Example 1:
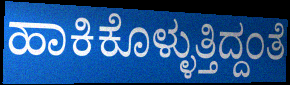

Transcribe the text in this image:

ಹಾಕಿಕೊಳ್ಳುತ್ತಿದ್ದಂತೆ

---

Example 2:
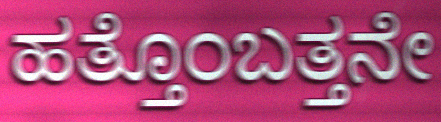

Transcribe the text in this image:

ಹತ್ತೊಂಬತ್ತನೇ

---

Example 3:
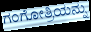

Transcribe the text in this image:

ಗಂಗೋತ್ರಿಯನ್ನು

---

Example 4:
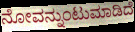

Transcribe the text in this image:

ನೋವನ್ನುಂಟುಮಾಡಿದೆ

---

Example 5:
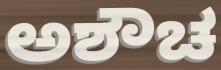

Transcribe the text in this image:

ಅಶೌಚ